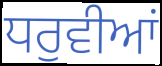
ਧਰੁਵੀਆਂ